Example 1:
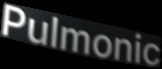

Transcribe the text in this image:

Pulmonic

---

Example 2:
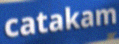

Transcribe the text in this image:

catakam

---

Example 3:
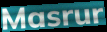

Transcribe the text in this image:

Masrur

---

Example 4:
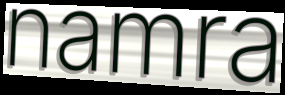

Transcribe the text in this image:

namra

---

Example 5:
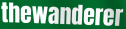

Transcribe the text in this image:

thewanderer